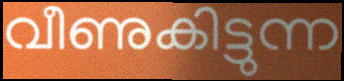
വീണുകിട്ടുന്ന